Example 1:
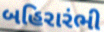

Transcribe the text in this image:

બહિરારંભી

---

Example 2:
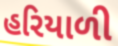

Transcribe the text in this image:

હરિયાળી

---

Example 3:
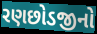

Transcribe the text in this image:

રણછોડજીનો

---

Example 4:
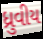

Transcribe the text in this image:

ધ્રુવીય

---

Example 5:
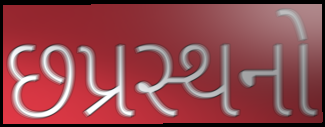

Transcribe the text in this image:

છપ્રસ્થનો